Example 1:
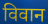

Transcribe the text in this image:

विवान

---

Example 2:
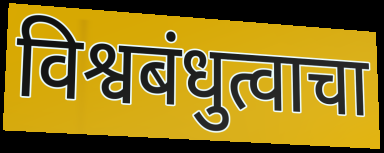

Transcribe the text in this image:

विश्वबंधुत्वाचा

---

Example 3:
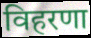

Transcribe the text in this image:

विहरणा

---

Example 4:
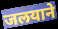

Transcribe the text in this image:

जलयाने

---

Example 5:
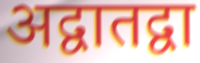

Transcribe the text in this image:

अद्वातद्वा